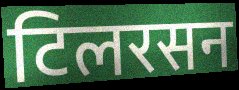
टिलरसन